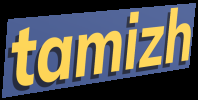
tamizh